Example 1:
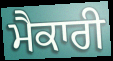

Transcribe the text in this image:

ਮੈਕਾਰੀ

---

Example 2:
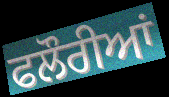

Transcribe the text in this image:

ਫਲੌਰੀਆਂ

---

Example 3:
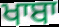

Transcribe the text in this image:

ਖਾਬਾ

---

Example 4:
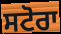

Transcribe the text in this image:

ਸਟੋਰਾ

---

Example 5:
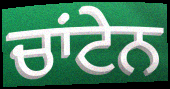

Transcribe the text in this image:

ਚਾਂਟੇਨ